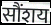
सौंशय